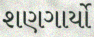
શણગાર્યો